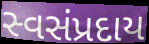
સ્વસંપ્રદાય